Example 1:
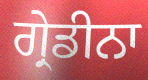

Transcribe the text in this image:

ਗ੍ਰੇਡੀਨਾ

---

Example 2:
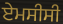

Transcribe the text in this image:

ਏਮਸੀਸੀ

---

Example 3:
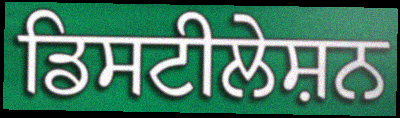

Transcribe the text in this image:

ਡਿਸਟੀਲੇਸ਼ਨ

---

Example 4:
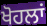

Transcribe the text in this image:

ਖੋਹਲਾਂ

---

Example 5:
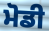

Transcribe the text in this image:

ਮੋਡੀ